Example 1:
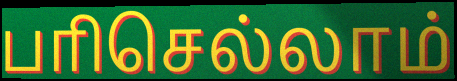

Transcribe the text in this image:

பரிசெல்லாம்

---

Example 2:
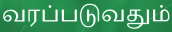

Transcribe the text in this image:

வரப்படுவதும்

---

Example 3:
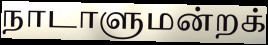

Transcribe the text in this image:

நாடாளுமன்றக்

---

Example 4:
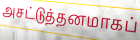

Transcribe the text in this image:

அசட்டுத்தனமாகப்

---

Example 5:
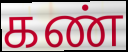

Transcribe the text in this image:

கண்